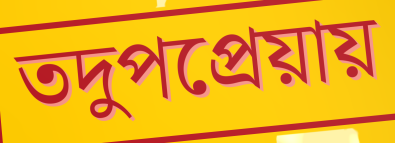
তদুপপ্রেয়ায়